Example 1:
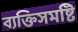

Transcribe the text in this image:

ব্যক্তিসমষ্টি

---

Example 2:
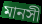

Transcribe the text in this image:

মানসী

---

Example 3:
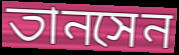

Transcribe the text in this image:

তানসেন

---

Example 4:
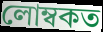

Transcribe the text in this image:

লোম্বকত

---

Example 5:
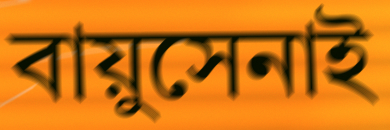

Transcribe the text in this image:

বায়ুসেনাই